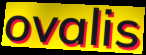
ovalis